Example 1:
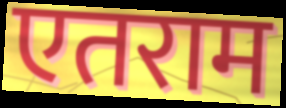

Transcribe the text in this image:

एतराम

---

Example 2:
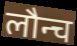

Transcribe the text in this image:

लौन्च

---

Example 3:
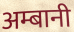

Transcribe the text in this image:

अम्‍बानी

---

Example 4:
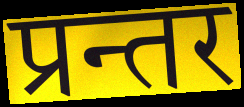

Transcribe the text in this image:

प्रन्तर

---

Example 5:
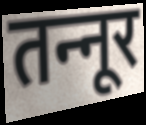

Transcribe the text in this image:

तन्नूर